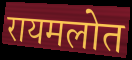
रायमलोत